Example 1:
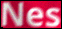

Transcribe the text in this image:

Nes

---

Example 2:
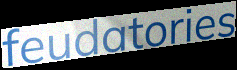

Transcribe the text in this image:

feudatories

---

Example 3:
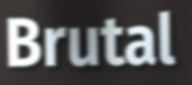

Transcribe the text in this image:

Brutal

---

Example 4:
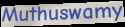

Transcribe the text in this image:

Muthuswamy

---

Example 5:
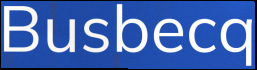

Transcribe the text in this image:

Busbecq